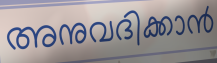
അനുവദിക്കാൻ